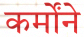
कर्मोंने